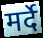
मर्दे